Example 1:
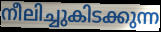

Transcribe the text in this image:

നീലിച്ചുകിടക്കുന്ന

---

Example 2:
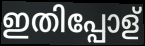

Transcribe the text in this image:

ഇതിപ്പോള്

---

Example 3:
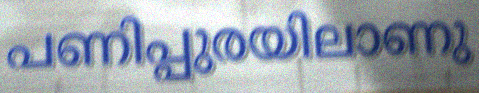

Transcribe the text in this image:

പണിപ്പുരയിലാണു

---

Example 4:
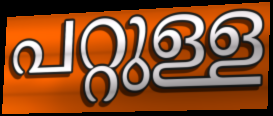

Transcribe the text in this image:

പറ്റുള്ള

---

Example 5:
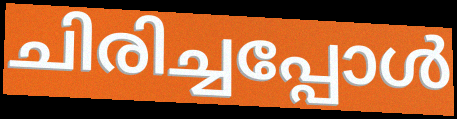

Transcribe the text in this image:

ചിരിച്ചപ്പോൾ